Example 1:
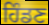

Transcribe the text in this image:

ਹਿੰਡਣ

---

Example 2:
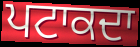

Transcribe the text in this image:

ਪਟਾਕਦਾ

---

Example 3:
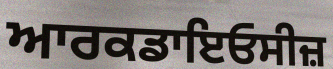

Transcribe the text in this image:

ਆਰਕਡਾਇਓਸੀਜ਼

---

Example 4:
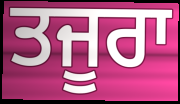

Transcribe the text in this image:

ਤਜੂਰਾ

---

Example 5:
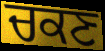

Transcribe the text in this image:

ਚਕਣ